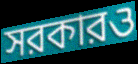
সরকারও